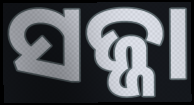
ସଜ୍ଜା